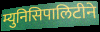
म्युनिसिपालिटीने